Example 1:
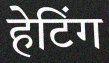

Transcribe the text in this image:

हेटिंग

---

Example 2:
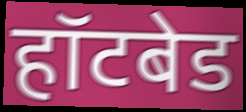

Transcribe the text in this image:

हॉटबेड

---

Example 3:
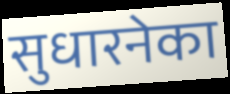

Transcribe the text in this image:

सुधारनेका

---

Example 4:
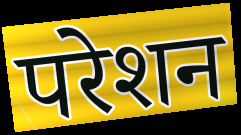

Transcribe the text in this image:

परेशन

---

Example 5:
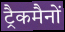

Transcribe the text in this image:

ट्रैकमैनों